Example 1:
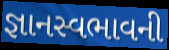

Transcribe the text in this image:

જ્ઞાનસ્વભાવની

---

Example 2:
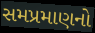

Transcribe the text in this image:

સમપ્રમાણનો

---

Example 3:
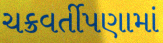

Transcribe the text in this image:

ચક્રવર્તીપણામાં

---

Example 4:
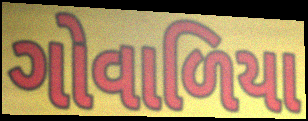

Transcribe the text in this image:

ગોવાળિયા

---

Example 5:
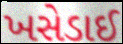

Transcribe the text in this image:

ખસેડાઈ